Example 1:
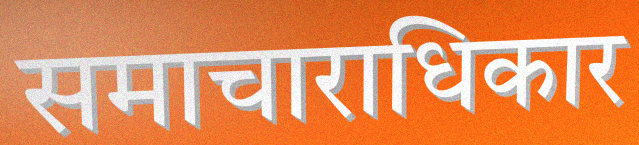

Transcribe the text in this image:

समाचाराधिकार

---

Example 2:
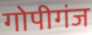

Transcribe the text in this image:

गोपीगंज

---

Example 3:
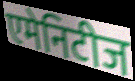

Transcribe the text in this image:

एमेनिटीज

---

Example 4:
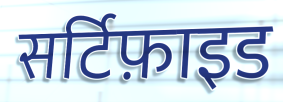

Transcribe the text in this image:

सर्टिफ़ाइड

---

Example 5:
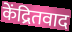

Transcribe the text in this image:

केंद्रितवाद